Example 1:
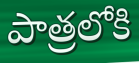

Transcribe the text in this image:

పాత్రలోకి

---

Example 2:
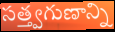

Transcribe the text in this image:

సత్త్వగుణాన్ని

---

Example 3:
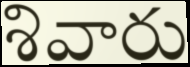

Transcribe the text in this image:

శివారు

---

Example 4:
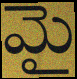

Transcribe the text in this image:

మై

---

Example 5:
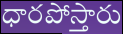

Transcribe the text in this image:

ధారపోస్తారు